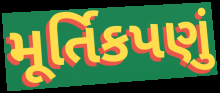
મૂર્તિકપણું